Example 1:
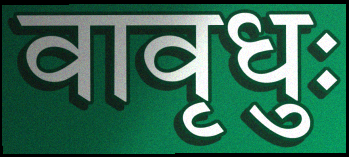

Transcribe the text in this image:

वावृधुः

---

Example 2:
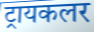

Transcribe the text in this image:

ट्रायकलर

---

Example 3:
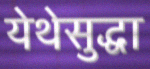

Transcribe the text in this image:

येथेसुद्धा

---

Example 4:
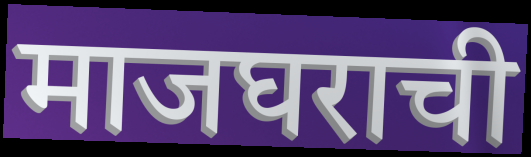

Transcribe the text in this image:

माजघराची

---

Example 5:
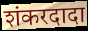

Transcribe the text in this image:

शंकरदादा